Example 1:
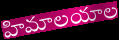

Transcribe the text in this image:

హిమాలయాల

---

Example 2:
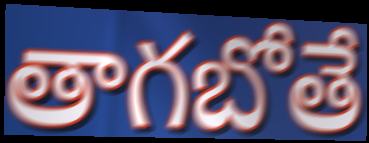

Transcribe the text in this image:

తాగబోతే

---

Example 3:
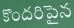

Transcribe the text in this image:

కొందరిపైన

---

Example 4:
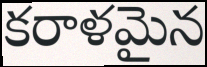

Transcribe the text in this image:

కరాళమైన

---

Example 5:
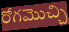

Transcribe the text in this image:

రోగమొచ్చి